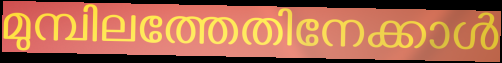
മുമ്പിലത്തേതിനേക്കാൾ